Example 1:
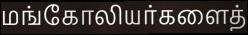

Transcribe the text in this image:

மங்கோலியர்களைத்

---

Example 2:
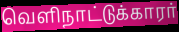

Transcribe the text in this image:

வெளிநாட்டுக்காரர்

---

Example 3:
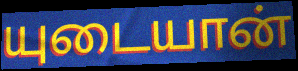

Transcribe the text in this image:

யுடையான்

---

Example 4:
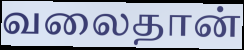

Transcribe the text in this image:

வலைதான்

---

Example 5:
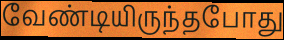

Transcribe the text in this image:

வேண்டியிருந்தபோது